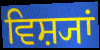
ਵਿਸ਼੍ਯਾਂ